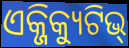
ଏକ୍ଜିକ୍ୟୁଟିଭ୍